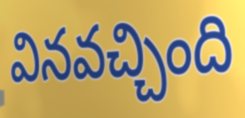
వినవచ్చింది